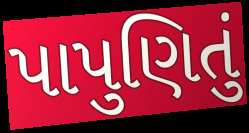
પાપુણિતું